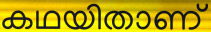
കഥയിതാണ്